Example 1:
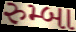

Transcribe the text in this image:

રુમ્બા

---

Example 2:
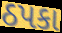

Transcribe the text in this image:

ઠપકા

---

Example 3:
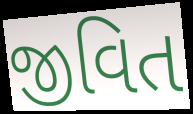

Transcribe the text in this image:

જીવિત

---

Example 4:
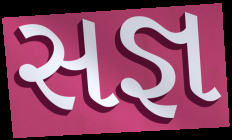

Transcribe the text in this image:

સજ્ઞ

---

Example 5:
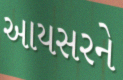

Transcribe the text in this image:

આયસરને